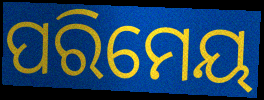
ପରିମେୟ